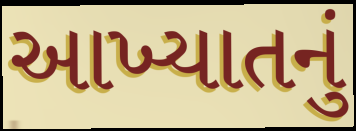
આખ્યાતનું